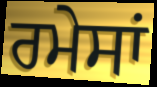
ਰਮੇਸਾਂ